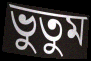
ভুতুম